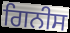
ਗਿਨੀਸ